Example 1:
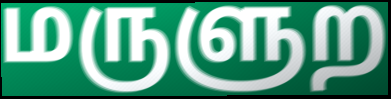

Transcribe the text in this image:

மருளுற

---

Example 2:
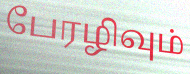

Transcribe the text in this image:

பேரழிவும்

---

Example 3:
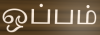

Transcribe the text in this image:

ஒப்பம்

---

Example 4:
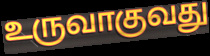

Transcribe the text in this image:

உருவாகுவது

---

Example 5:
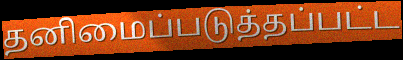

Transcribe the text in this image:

தனிமைப்படுத்தப்பட்ட